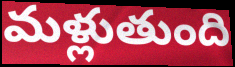
మళ్లుతుంది